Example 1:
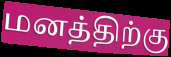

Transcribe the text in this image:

மனத்திற்கு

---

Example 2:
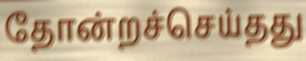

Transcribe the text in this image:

தோன்றச்செய்தது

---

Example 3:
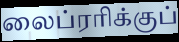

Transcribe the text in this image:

லைப்ரரிக்குப்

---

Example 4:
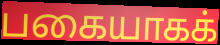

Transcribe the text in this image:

பகையாகக்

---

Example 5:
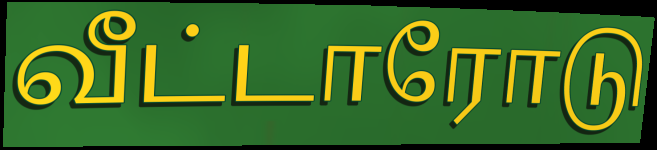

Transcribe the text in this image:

வீட்டாரோடு